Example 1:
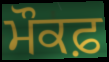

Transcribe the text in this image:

ਮੌਕਫ਼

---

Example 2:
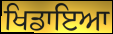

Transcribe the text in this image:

ਖਿਡਾਇਆ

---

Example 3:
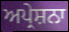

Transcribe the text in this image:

ਅਪ੍ਰੇਸ਼ਨਾ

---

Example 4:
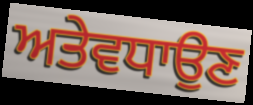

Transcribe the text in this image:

ਅਤੇਵਧਾਉਣ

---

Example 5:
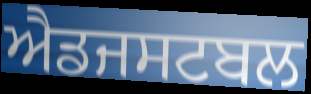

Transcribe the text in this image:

ਐਡਜਸਟਬਲ